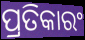
ପ୍ରତିକାରଂ